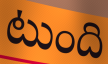
టుంది